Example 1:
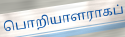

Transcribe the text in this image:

பொறியாளராகப்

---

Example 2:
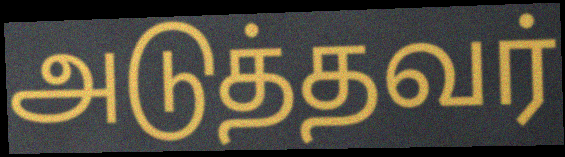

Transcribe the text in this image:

அடுத்தவர்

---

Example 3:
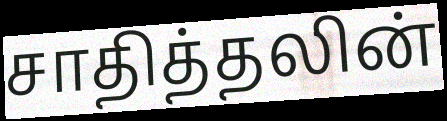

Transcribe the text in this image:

சாதித்தலின்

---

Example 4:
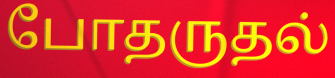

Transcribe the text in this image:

போதருதல்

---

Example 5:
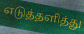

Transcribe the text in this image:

எடுத்தளித்து